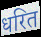
धरित